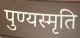
पुण्यस्मृति